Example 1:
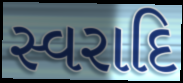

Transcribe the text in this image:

સ્વરાદિ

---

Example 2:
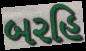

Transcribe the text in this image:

બરહિ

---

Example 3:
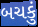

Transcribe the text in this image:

બચકું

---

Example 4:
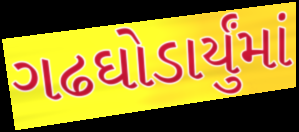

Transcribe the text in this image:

ગઢઘોડાર્યુંમાં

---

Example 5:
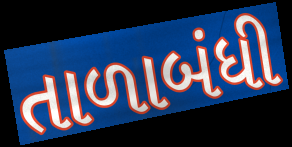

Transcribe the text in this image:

તાળાબંધી